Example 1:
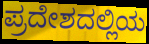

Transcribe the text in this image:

ಪ್ರದೇಶದಲ್ಲಿಯ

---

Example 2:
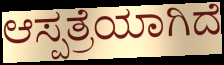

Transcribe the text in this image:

ಆಸ್ಪತ್ರೆಯಾಗಿದೆ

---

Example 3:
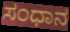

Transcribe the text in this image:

ಸಂಧಾನ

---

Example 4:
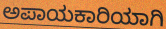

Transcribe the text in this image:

ಅಪಾಯಕಾರಿಯಾಗಿ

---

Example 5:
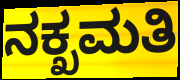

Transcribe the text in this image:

ನಕ್ಖಮತಿ